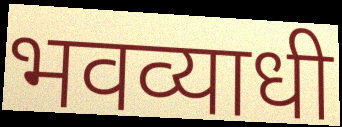
भवव्याधी